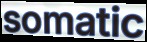
somatic